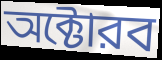
অক্টোরব